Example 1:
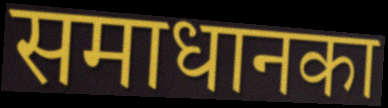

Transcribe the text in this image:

समाधानका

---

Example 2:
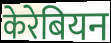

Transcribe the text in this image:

केरेबियन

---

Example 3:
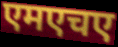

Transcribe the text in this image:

एमएचए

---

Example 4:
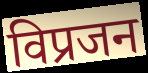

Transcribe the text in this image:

विप्रजन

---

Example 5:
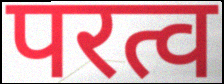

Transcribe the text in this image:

परत्व